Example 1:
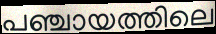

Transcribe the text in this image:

പഞ്ചായത്തിലെ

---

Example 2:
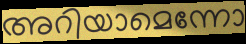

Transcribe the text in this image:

അറിയാമെന്നോ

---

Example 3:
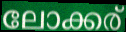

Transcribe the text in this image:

ലോക്കര്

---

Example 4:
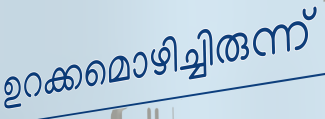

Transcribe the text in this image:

ഉറക്കമൊഴിച്ചിരുന്ന്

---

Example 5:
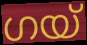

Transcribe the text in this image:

ഗയ്